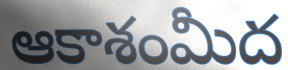
ఆకాశంమీద